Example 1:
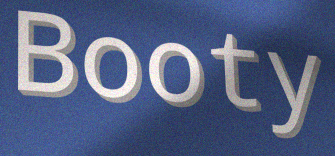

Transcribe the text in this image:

Booty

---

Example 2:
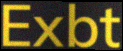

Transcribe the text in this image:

Exbt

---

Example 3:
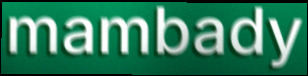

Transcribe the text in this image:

mambady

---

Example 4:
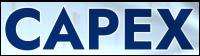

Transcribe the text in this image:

CAPEX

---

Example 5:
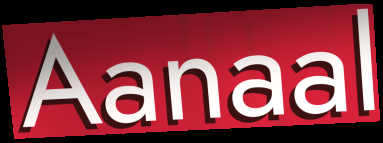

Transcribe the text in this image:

Aanaal